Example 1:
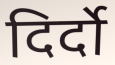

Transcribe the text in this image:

दिर्दो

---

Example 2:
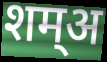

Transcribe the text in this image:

शम्अ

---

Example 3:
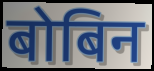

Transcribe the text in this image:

बोबिन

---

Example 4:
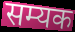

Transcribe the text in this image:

सम्यक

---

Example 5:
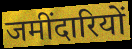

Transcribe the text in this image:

जमींदारियों